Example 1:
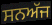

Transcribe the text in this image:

ਸਨਅੱਜ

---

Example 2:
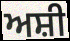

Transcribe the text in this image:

ਅਸ਼ੀ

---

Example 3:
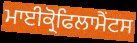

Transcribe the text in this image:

ਮਾਈਕ੍ਰੋਫਿਲਾਮੈਂਟਸ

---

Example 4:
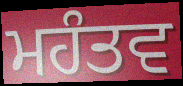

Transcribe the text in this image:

ਮਹੰਤਵ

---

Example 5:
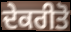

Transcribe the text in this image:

ਦੇਕਰੀਤੋ